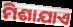
ମିଶାଯାଏ